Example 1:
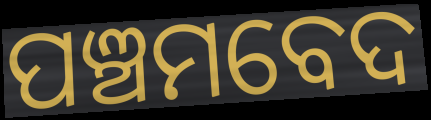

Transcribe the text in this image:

ପଞ୍ଚମବେଦ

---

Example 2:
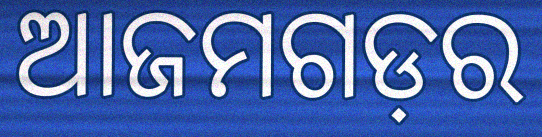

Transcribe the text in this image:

ଆଜମଗଡ଼ର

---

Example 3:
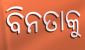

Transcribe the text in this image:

ବିନତାକୁ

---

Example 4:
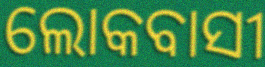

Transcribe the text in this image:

ଲୋକବାସୀ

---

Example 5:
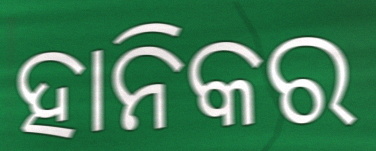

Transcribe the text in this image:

ହାନିକର